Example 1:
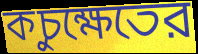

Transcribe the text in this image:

কচুক্ষেতের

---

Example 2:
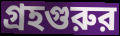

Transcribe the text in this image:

গ্রহগুরুর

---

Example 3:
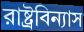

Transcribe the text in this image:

রাষ্ট্রবিন্যাস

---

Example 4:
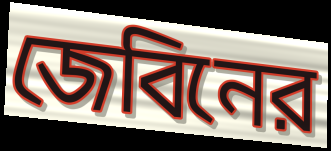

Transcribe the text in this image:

জেবিনের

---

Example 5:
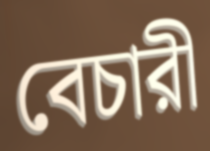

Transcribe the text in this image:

বেচারী